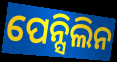
ପେନ୍ସିଲିନ